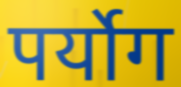
पर्योग